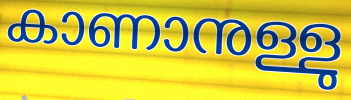
കാണാനുള്ളു